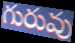
గురువు